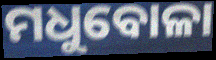
ମଧୁବୋଳା